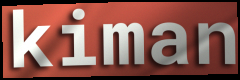
kiman